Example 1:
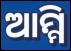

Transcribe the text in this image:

ଆମ୍ମି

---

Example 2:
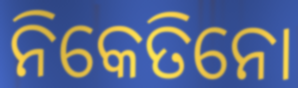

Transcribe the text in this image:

ନିକେତିନୋ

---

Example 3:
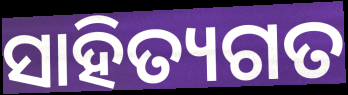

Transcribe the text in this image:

ସାହିତ୍ୟଗତ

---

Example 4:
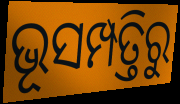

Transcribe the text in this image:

ଭୂସମ୍ପତ୍ତିରୁ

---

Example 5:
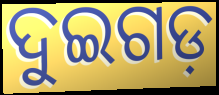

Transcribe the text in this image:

ଦୁଇଗଡ଼